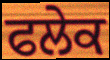
ਫਲੇਕ